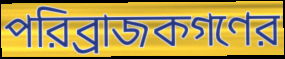
পরিব্রাজকগণের